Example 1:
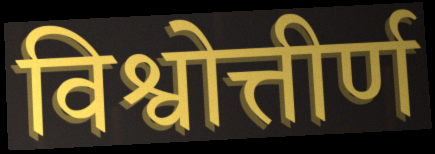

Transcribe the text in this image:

विश्वोत्तीर्ण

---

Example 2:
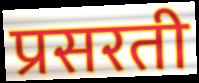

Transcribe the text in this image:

प्रसरती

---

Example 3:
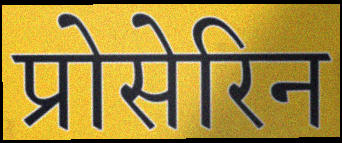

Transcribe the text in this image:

प्रोसेरिन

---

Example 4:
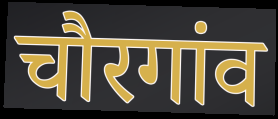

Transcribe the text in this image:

चौरगांव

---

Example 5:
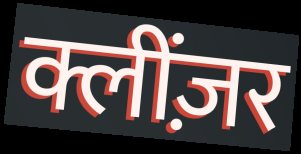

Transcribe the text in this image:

क्लींज़र